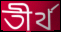
তীর্থ